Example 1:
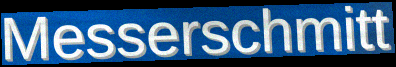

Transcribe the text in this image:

Messerschmitt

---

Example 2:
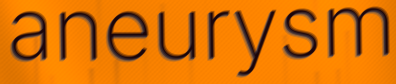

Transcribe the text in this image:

aneurysm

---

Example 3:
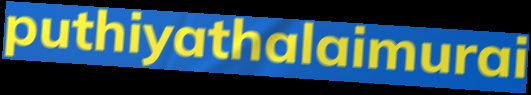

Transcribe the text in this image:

puthiyathalaimurai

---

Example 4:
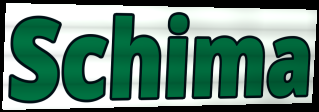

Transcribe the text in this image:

Schima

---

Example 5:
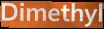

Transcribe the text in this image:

Dimethyl